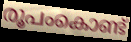
രൂപംകൊണ്ട്